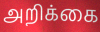
அறிக்கை